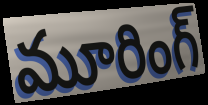
మూరింగ్